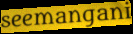
seemangani